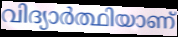
വിദ്യാർത്ഥിയാണ്